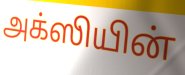
அக்ஸியின்